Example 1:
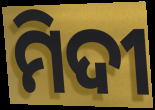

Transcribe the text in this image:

ମିଦୀ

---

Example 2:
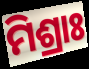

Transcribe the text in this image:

ମିଶ୍ରାଃ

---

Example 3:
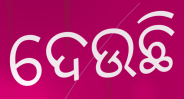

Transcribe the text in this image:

ଦେଉଛି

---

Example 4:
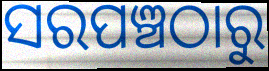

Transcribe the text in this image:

ସରପଞ୍ଚଠାରୁ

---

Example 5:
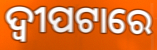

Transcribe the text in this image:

ଦ୍ୱୀପଟାରେ